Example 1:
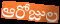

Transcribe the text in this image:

ఆరోజుల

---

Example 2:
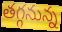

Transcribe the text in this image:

తగ్గనున్న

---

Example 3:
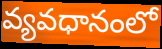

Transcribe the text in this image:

వ్యవధానంలో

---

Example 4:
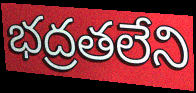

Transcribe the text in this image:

భద్రతలేని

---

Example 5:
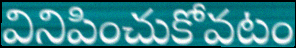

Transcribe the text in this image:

వినిపించుకోవటం